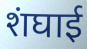
शंघाई